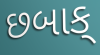
છબાક્